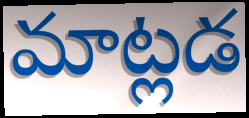
మాట్లడ